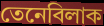
তেনেবিলাক